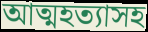
আত্মহত্যাসহ